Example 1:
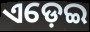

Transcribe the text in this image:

ଏଡ଼େଇ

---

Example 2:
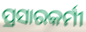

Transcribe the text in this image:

ପ୍ରସାରକର୍ମୀ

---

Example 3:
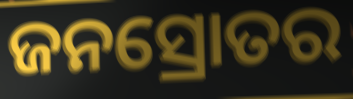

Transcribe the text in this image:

ଜନସ୍ରୋତର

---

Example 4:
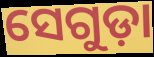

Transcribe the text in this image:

ସେଗୁଡ଼ା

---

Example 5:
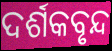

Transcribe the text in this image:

ଦର୍ଶକବୃନ୍ଦ